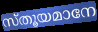
സ്തൂയമാനേ